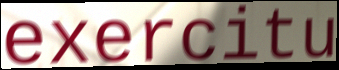
exercitu